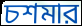
চশমার